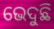
ଭେଦୁଛି